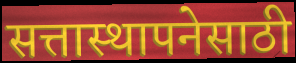
सत्तास्थापनेसाठी